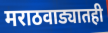
मराठवाड्यातही